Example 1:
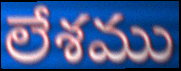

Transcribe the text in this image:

లేశము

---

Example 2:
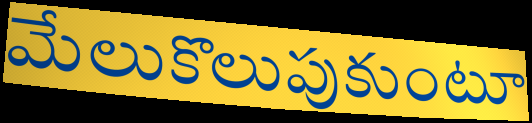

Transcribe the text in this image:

మేలుకొలుపుకుంటూ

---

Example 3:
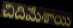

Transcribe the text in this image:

చిదిమేశాయి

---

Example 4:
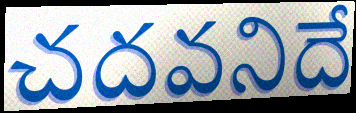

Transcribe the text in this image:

చదవనిదే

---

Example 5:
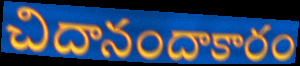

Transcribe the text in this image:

చిదానందాకారం